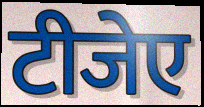
टीजेए